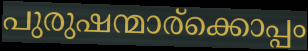
പുരുഷന്മാര്ക്കൊപ്പം